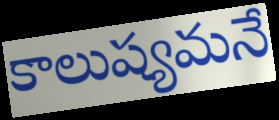
కాలుష్యమనే